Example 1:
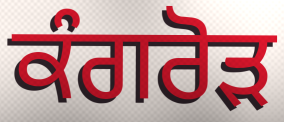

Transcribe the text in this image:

ਕੰਗਰੋੜ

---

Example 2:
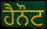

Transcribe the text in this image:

ਹੈਨੌਟ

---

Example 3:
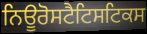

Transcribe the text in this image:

ਨਿਊਰੋਸਟੈਟਿਸਟਿਕਸ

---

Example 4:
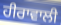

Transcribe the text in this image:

ਹੀਰਾਵਾਲੀ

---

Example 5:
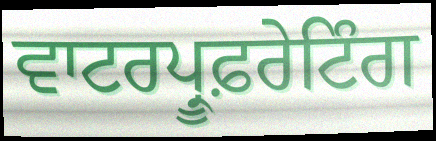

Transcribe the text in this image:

ਵਾਟਰਪ੍ਰੂਫ਼ਰੇਟਿੰਗ